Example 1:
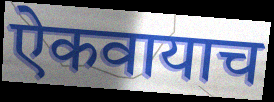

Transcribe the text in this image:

ऐकवायाच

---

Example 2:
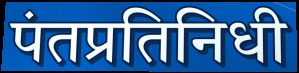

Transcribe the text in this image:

पंतप्रतिनिधी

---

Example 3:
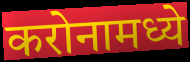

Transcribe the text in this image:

करोनामध्ये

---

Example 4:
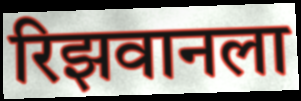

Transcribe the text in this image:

रिझवानला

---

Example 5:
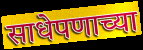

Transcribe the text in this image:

साधेपणाच्या